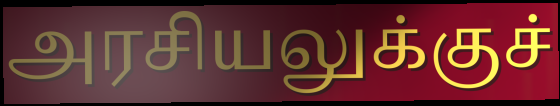
அரசியலுக்குச்